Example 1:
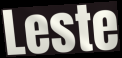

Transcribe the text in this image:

Leste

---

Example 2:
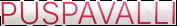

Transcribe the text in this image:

PUSPAVALLI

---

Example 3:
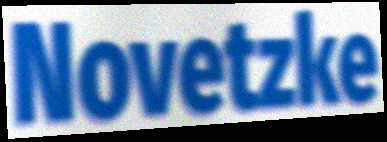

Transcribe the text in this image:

Novetzke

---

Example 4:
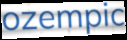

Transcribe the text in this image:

ozempic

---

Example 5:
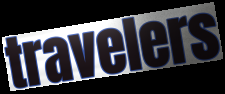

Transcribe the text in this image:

travelers